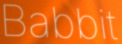
Babbit